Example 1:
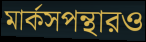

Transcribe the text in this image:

মার্কসপন্থারও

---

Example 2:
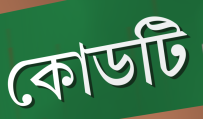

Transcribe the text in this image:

কোডটি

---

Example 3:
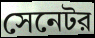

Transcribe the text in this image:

সেনেটর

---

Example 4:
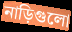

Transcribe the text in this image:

নাড়িগুলো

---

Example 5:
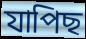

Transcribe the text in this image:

যাপিছ